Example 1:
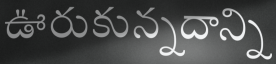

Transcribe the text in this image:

ఊరుకున్నదాన్ని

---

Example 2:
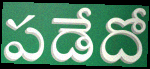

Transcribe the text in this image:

పడేదో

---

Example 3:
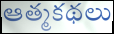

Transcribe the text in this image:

ఆత్మకథలు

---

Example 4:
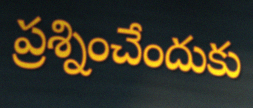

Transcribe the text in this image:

ప్రశ్నించేందుకు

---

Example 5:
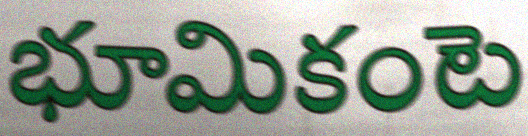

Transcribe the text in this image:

భూమికంటె